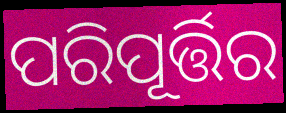
ପରିପୂର୍ତ୍ତିର